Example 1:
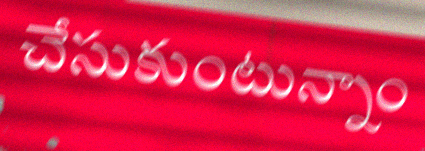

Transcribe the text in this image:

చేసుకుంటున్నాం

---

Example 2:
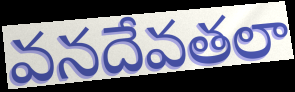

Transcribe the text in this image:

వనదేవతలా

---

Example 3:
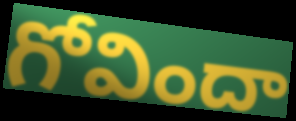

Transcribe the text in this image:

గోవిందా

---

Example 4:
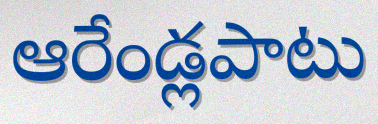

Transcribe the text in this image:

ఆరేండ్లపాటు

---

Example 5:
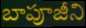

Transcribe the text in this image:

బాపూజీని